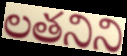
లతనిని